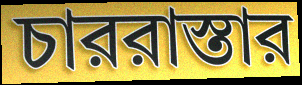
চাররাস্তার